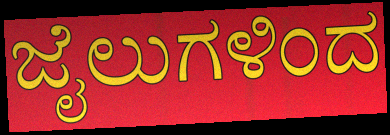
ಜೈಲುಗಳಿಂದ